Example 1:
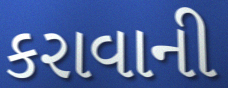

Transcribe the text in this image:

કરાવાની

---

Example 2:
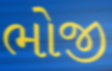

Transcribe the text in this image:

ભોજી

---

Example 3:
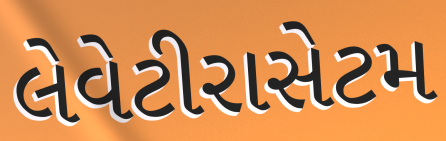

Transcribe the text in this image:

લેવેટીરાસેટમ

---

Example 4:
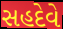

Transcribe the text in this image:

સહદેવે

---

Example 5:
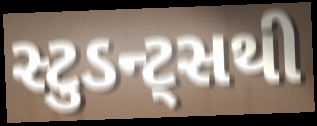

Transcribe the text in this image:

સ્ટુડન્ટ્સથી